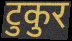
टुकुर